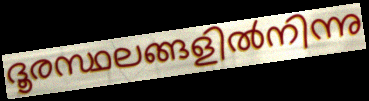
ദൂരസ്ഥലങ്ങളിൽനിന്നു